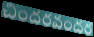
చిందరవందర